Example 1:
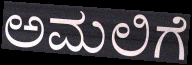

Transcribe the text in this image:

ಅಮಲಿಗೆ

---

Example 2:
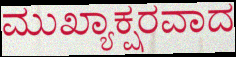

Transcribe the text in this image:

ಮುಖ್ಯಾಕ್ಷರವಾದ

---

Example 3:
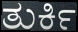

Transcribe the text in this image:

ತುರ್ಕಿ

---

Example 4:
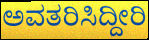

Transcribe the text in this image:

ಅವತರಿಸಿದ್ದೀರಿ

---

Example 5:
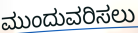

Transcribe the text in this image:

ಮುಂದುವರಿಸಲು